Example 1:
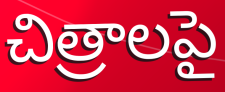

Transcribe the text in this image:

చిత్రాలపై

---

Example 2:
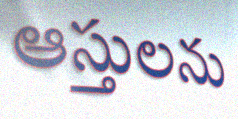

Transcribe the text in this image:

ఆస్తులను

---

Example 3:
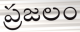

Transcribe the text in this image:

ప్రజలం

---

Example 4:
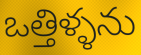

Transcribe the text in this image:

ఒత్తిళ్ళను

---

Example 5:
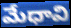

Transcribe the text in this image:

మేధావి